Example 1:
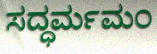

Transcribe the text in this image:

ಸದ್ಧರ್ಮಮಂ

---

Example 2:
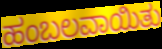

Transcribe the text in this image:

ಹಂಬಲವಾಯಿತು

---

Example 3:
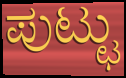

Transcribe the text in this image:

ಪುಟ್ಟು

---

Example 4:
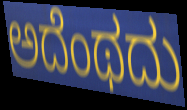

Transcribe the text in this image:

ಅದೆಂಥದು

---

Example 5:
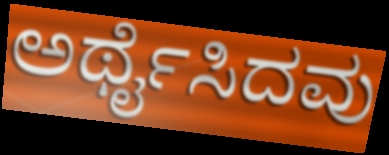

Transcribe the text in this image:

ಅರ್ಥೈಸಿದವು